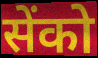
सेंको